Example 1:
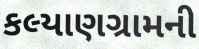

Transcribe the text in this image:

કલ્યાણગ્રામની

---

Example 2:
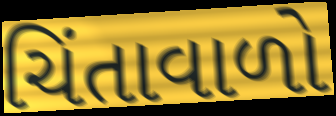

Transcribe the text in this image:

ચિંતાવાળો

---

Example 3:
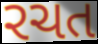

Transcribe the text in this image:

રચત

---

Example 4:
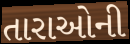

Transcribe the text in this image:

તારાઓની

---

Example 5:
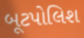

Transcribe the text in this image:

બૂટપોલિશ